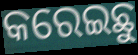
କରେଇଛୁ